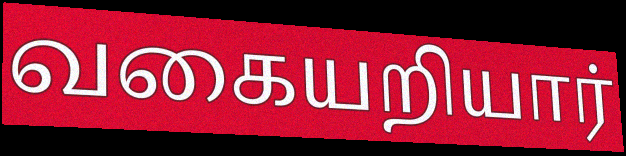
வகையறியார்